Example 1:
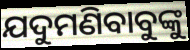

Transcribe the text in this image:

ଯଦୁମଣିବାବୁଙ୍କୁ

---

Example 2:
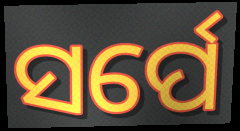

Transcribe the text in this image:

ସର୍ପେ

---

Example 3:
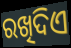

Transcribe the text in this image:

ରଖିଦିଏ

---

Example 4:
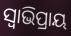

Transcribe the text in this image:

ସ୍ଵାଭିପ୍ରାୟ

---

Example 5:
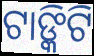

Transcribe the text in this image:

ଟାଙ୍କିଟି